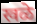
खळे